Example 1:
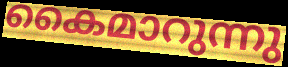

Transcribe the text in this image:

കൈമാറുന്നു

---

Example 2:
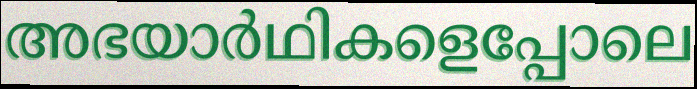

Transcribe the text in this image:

അഭയാർഥികളെപ്പോലെ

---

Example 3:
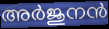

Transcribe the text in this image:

അർജുനൻ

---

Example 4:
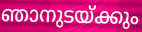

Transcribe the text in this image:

ഞാനുടയ്ക്കും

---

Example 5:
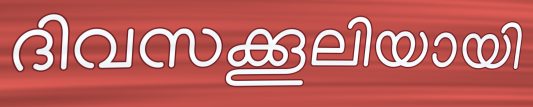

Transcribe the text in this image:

ദിവസക്കൂലിയായി